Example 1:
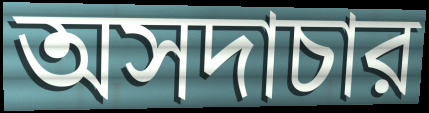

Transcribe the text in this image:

অসদাচার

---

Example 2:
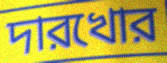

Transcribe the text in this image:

দারখোর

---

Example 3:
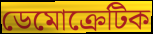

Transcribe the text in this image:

ডেমোক্রেটিক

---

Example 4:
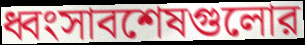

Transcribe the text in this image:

ধ্বংসাবশেষগুলোর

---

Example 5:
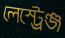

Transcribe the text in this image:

লেস্ট্রেঞ্জ